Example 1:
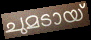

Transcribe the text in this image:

ചുമടായ്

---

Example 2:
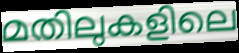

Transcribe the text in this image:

മതിലുകളിലെ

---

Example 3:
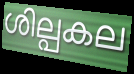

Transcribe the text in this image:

ശില്പകല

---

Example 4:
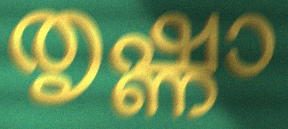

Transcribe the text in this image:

തൃഷ്ണാ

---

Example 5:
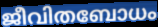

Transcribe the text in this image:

ജീവിതബോധം